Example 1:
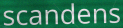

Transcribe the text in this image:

scandens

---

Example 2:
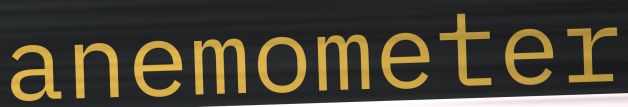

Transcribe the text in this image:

anemometer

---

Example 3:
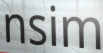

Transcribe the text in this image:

nsim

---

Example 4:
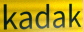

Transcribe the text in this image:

kadak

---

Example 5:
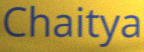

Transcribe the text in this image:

Chaitya